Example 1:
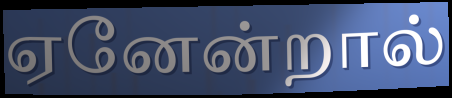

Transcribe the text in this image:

ஏனேன்றால்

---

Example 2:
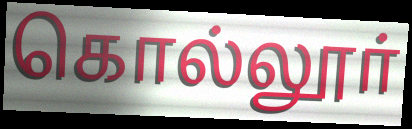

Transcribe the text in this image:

கொல்லூர்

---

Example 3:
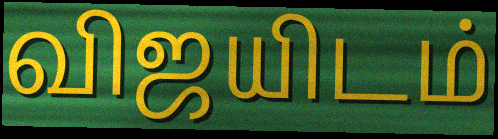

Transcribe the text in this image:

விஜயிடம்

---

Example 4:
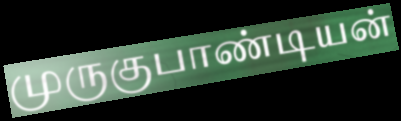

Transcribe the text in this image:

முருகுபாண்டியன்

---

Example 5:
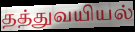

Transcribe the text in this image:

தத்துவயியல்